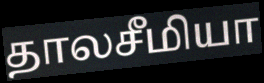
தாலசீமியா